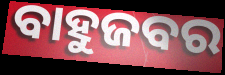
ବାହୁଜବର